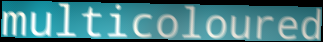
multicoloured